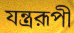
যন্ত্ররূপী